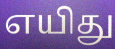
எயிது